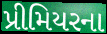
પ્રીમિયરના